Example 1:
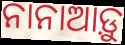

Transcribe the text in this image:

ନାନାଆଡ଼ୁ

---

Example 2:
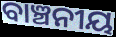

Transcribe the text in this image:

ବାଞ୍ଚନୀୟ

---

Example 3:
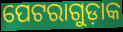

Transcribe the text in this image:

ପେଟରାଗୁଡ଼ାକ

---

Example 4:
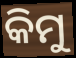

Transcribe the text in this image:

କିମୁ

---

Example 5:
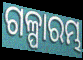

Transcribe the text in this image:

ଗଳ୍ପାରମ୍ଭ